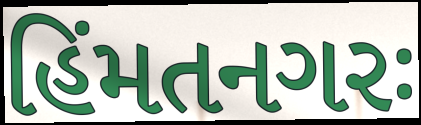
હિંમતનગરઃ